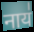
नाय॑